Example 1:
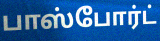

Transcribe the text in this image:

பாஸ்போர்ட்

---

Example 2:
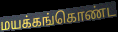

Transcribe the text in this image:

மயக்கங்கொண்ட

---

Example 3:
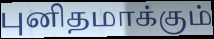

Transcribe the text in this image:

புனிதமாக்கும்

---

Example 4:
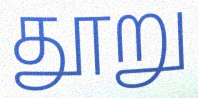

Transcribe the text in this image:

தூறு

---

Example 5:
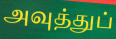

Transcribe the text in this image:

அவுத்துப்